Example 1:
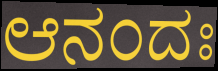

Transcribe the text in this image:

ಆನಂದಃ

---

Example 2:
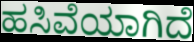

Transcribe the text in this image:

ಹಸಿವೆಯಾಗಿದೆ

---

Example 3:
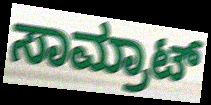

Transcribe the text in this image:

ಸಾಮ್ರಾಟ್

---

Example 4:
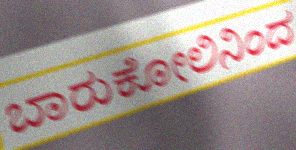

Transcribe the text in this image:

ಬಾರುಕೋಲಿನಿಂದ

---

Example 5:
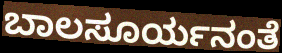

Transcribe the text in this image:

ಬಾಲಸೂರ್ಯನಂತೆ